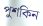
পুশকিন